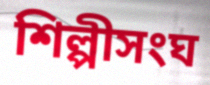
শিল্পীসংঘ